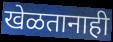
खेळतानाही